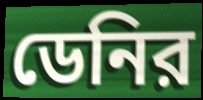
ডেনির